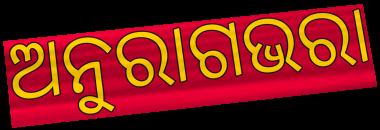
ଅନୁରାଗଭରା